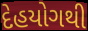
દેહયોગથી